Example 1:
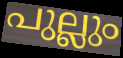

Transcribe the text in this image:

പുല്ലും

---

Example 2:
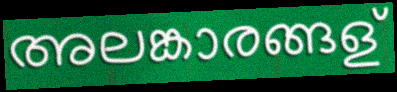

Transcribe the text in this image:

അലങ്കാരങ്ങള്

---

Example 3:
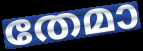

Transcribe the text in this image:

തേമാ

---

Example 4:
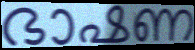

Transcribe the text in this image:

ഭാഷണ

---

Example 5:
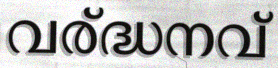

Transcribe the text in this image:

വര്ദ്ധനവ്